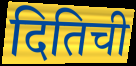
दितिची